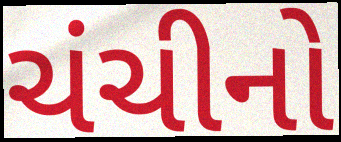
ચંચીનો